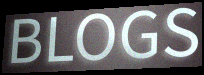
BLOGS